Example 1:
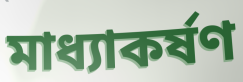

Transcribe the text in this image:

মাধ্যাকৰ্ষণ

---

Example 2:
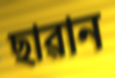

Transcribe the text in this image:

ছাৱান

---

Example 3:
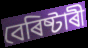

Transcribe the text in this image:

বেৰিষ্টাৰী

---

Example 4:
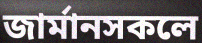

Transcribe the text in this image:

জাৰ্মানসকলে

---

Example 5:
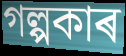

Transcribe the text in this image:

গল্পকাৰ